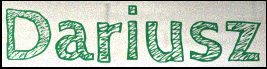
Dariusz